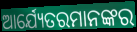
ଆର୍ଯ୍ୟେତରମାନଙ୍କର